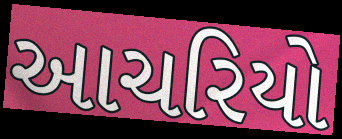
આચરિયો